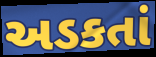
અડકતાં